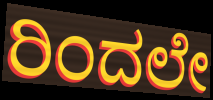
ರಿಂದಲೇ